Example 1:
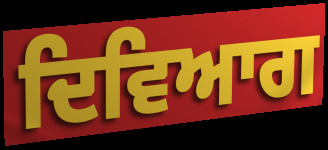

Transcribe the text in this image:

ਦਿਵਿਆਗ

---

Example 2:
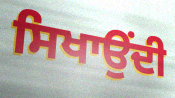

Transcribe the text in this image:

ਸਿਖਾਉਂਦੀ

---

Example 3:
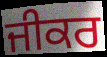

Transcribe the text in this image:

ਜੀਕਰ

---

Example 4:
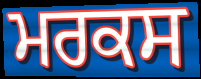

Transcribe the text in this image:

ਮਰਕਸ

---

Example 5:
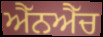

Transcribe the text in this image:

ਐੱਨਐੱਚ